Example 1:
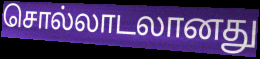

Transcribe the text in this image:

சொல்லாடலானது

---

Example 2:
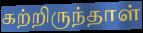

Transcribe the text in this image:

கற்றிருந்தாள்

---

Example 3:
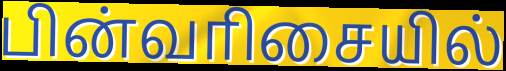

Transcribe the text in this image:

பின்வரிசையில்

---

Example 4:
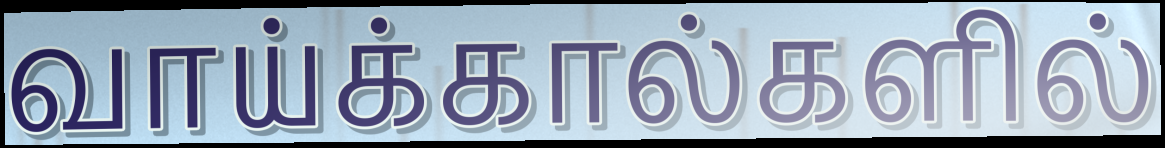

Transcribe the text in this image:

வாய்க்கால்களில்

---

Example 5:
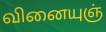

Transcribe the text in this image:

வினையுஞ்